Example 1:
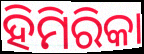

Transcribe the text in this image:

ହିମିରିକା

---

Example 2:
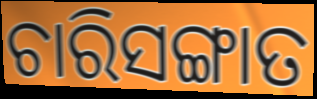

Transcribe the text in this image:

ଚାରିସଙ୍ଗାତ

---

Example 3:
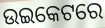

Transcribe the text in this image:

ଉଇକେଟରେ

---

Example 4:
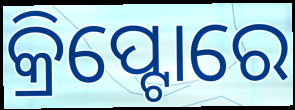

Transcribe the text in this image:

କ୍ରିପ୍ଟୋରେ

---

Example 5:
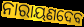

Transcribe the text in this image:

ନାରାୟଣଦେବ